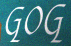
GOG